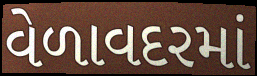
વેળાવદરમાં